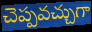
చెప్పవచ్చుగా